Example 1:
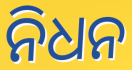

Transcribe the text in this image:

ନିଧନ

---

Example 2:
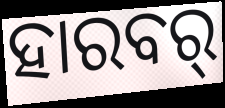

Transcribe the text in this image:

ହାରବର୍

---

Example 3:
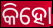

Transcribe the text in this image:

କିହୋ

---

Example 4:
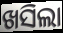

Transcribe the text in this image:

ଖସିଲା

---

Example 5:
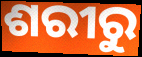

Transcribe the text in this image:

ଶରୀରୁ